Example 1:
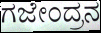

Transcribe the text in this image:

ಗಜೇಂದ್ರನ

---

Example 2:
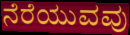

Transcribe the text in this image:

ನೆರೆಯುವವು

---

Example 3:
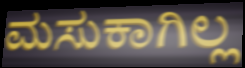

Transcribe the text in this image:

ಮಸುಕಾಗಿಲ್ಲ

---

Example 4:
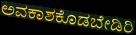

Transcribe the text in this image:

ಅವಕಾಶಕೊಡಬೇಡಿರಿ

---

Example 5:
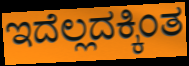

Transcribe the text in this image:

ಇದೆಲ್ಲದಕ್ಕಿಂತ